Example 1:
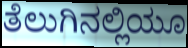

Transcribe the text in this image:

ತೆಲುಗಿನಲ್ಲಿಯೂ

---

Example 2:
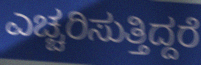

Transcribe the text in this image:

ಎಚ್ಚರಿಸುತ್ತಿದ್ದರೆ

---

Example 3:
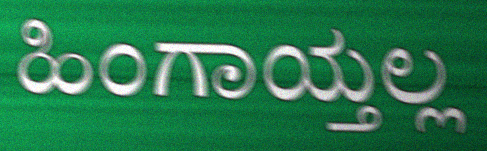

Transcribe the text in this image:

ಹಿಂಗಾಯ್ತಲ್ಲ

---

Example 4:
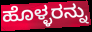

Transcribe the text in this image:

ಹೊಳ್ಳರನ್ನು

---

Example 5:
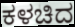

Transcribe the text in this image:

ಕಳಚಿದ